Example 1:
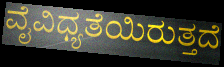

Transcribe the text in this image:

ವೈವಿಧ್ಯತೆಯಿರುತ್ತದೆ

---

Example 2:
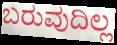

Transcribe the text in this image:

ಬರುವುದಿಲ್ಲ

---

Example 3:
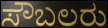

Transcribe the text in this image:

ಸೌಬಲರು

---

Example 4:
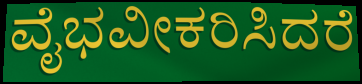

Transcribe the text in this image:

ವೈಭವೀಕರಿಸಿದರೆ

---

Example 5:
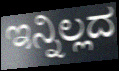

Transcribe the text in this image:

ಇನ್ನಿಲ್ಲದ